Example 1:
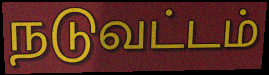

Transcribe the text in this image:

நடுவட்டம்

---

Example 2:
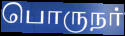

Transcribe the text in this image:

பொருநர்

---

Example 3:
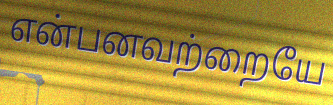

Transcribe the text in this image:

என்பனவற்றையே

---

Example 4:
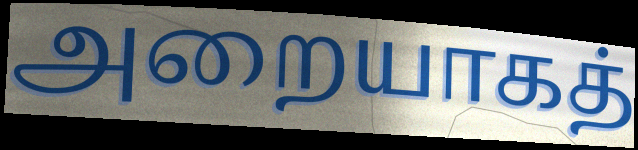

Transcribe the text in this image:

அறையாகத்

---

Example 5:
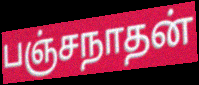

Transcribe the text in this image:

பஞ்சநாதன்